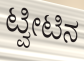
ಟ್ವೀಟಿನ